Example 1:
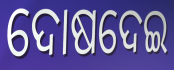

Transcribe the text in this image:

ଦୋଷଦେଇ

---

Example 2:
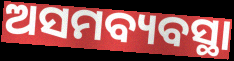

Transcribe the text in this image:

ଅସମବ୍ୟବସ୍ଥା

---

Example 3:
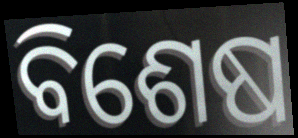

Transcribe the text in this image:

ବିଶେଷ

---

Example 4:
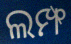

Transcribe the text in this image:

ଲମ୍ଫ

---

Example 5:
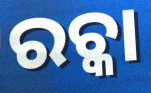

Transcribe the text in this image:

ରଚ୍କା